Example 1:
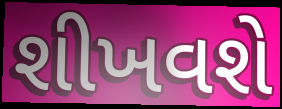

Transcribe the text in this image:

શીખવશે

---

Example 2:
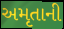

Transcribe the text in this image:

અમૃતાની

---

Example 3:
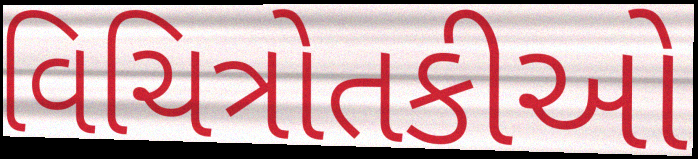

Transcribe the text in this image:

વિચિત્રોતકીઓ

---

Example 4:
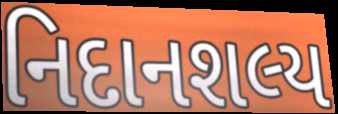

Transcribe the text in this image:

નિદાનશલ્ય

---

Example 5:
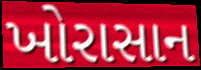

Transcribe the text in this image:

ખોરાસાન